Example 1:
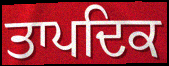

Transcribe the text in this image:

ਤਾਪਦਿਕ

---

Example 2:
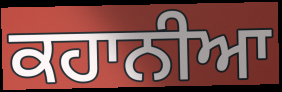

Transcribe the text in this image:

ਕਹਾਨੀਆ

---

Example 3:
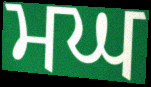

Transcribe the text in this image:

ਮਘ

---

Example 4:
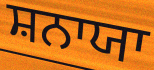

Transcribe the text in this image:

ਸ਼ਨਾਯਾ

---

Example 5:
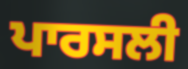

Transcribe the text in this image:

ਪਾਰਸਲੀ